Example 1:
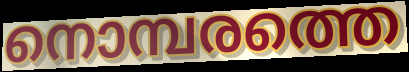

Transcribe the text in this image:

നൊമ്പരത്തെ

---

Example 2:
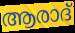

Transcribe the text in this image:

ആരാദ്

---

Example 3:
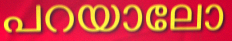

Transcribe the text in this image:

പറയാലോ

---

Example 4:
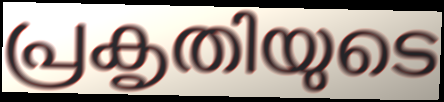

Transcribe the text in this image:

പ്രകൃതിയുടെ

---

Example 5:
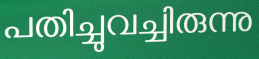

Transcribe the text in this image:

പതിച്ചുവച്ചിരുന്നു